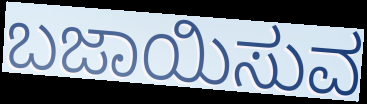
ಬಜಾಯಿಸುವ